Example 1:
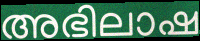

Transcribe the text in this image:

അഭിലാഷ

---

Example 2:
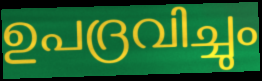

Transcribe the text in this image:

ഉപദ്രവിച്ചും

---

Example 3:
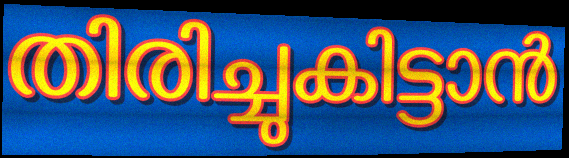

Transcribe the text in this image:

തിരിച്ചുകിട്ടാൻ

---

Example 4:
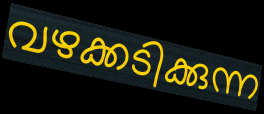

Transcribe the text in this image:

വഴക്കടിക്കുന്ന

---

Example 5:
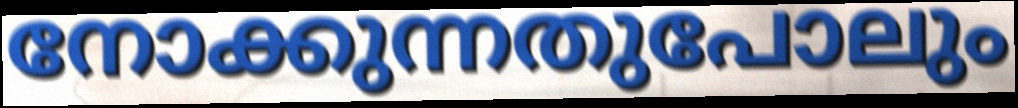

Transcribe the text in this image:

നോക്കുന്നതുപോലും